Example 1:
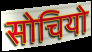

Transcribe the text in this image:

सोचियो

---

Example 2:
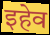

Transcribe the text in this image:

इहेव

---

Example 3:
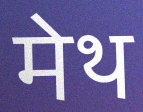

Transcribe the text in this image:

मेथ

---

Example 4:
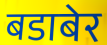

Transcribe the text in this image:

बडाबेर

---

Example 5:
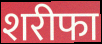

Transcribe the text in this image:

शरीफा